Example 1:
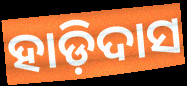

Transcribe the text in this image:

ହାଡ଼ିଦାସ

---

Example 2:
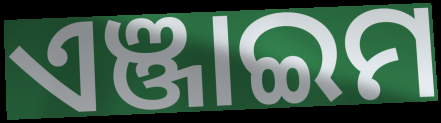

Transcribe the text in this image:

ଏଞ୍ଜାଇମ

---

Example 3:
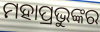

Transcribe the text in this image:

ମହାପ୍ରଭୁଙ୍କର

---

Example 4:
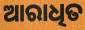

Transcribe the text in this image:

ଆରାଧିତ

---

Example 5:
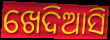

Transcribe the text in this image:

ଖେଦିଆସି